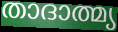
താദാത്മ്യ